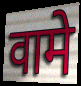
वामे